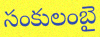
సంకులంబై